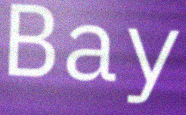
Bay